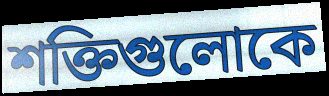
শক্তিগুলোকে